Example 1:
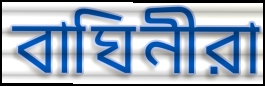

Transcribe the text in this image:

বাঘিনীরা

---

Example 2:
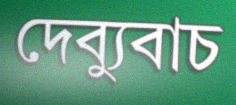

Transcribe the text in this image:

দেব্যুবাচ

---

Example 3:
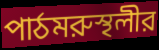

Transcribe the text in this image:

পাঠমরুস্থলীর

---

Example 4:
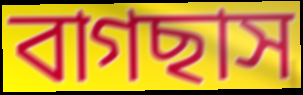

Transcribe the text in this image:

বাগছাস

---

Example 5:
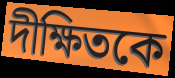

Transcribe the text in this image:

দীক্ষিতকে